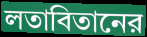
লতাবিতানের